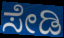
ಸೇಡಿ